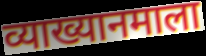
व्याख्यानमाला